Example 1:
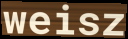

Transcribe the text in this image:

weisz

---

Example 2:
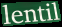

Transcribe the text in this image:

lentil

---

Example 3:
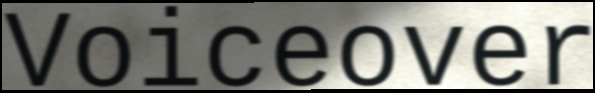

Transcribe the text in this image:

Voiceover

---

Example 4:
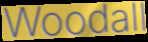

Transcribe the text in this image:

Woodall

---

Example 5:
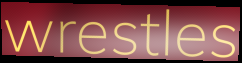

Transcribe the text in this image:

wrestles